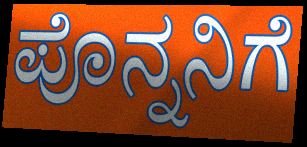
ಪೊನ್ನನಿಗೆ